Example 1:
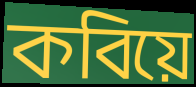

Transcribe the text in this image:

কবিয়ে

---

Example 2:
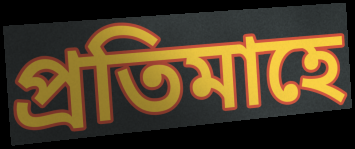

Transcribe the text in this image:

প্ৰতিমাহে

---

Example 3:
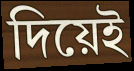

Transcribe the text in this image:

দিয়েই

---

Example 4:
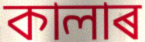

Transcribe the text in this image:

কালাৰ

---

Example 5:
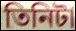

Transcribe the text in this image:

তিনিটা